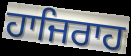
ਹਾਜਿਰਾਹ